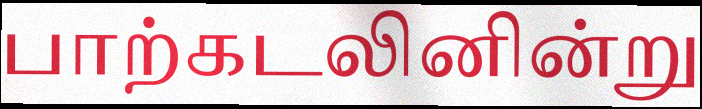
பாற்கடலினின்று